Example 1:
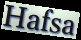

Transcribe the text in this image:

Hafsa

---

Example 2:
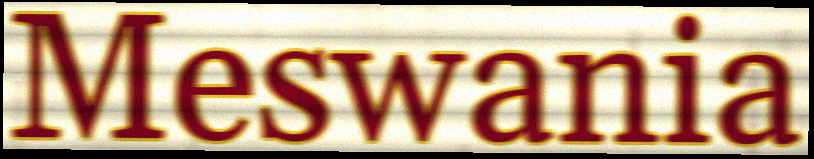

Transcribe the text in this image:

Meswania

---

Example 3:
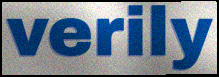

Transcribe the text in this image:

verily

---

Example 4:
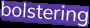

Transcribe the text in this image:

bolstering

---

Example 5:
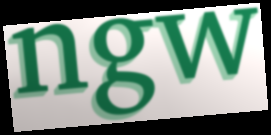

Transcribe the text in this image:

ngw